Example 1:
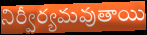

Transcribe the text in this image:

నిర్వీర్యమవుతాయి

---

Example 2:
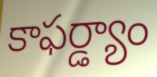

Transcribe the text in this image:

కాఫర్డ్యాం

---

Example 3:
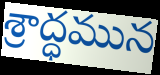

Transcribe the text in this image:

శ్రాద్ధమున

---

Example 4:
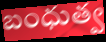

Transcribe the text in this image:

బంధుత్వ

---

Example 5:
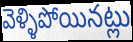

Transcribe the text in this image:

వెళ్ళిపోయినట్లు